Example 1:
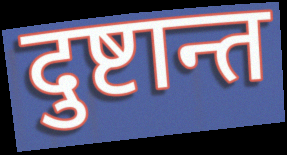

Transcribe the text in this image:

दुष्टान्त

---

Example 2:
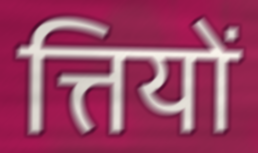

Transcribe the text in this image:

त्तियों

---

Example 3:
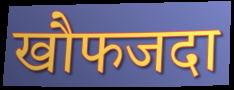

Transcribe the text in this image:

खौफजदा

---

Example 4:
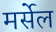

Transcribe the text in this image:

मर्सेल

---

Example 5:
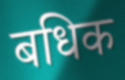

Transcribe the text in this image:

बधिक